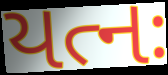
યત્નઃ